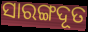
ସାରଙ୍ଗଦୂତ